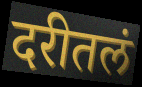
दरीतलं